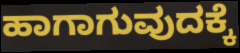
ಹಾಗಾಗುವುದಕ್ಕೆ